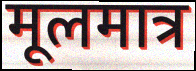
मूलमात्र